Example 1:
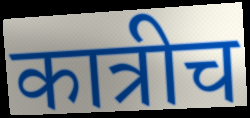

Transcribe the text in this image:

कात्रीच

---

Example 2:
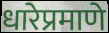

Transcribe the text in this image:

धारेप्रमाणे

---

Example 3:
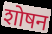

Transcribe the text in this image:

शोषन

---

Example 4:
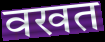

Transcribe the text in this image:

वखत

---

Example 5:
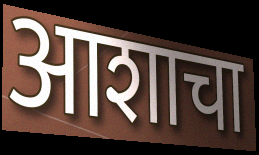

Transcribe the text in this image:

आशाचा